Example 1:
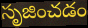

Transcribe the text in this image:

సృజించడం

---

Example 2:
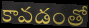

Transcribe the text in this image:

కావడంతో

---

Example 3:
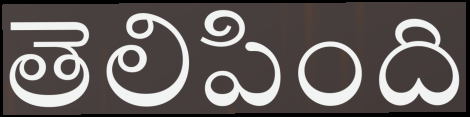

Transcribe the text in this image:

తెలిపింది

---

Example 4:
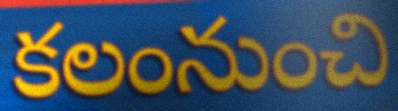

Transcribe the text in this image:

కలంనుంచి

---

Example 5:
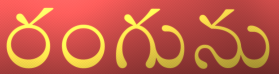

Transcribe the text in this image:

రంగును